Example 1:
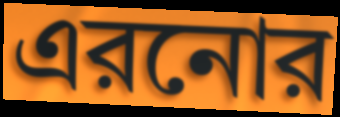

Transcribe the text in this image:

এরনোর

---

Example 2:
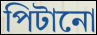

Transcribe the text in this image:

পিটানো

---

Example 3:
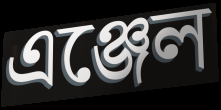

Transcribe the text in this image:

এঞ্জেল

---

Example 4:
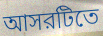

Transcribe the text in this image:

আসরটিতে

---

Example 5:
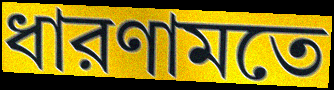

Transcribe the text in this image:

ধারণামতে